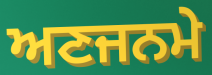
ਅਣਜਨਮੇ